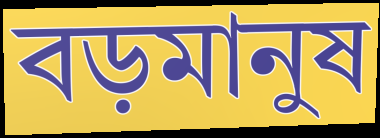
বড়মানুষ